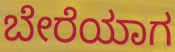
ಬೇರೆಯಾಗ